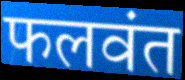
फलवंत